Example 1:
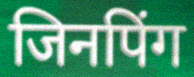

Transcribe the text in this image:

जिनपिंग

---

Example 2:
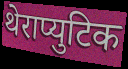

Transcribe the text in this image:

थेराप्युटिक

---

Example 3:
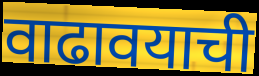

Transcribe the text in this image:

वाढावयाची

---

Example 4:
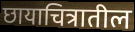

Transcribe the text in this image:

छायाचित्रातील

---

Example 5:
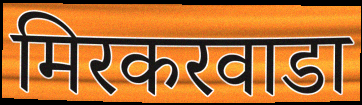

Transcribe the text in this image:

मिरकरवाडा